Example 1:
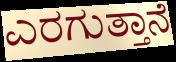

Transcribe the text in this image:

ಎರಗುತ್ತಾನೆ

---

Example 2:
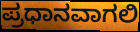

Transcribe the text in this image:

ಪ್ರಧಾನವಾಗಲಿ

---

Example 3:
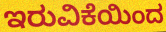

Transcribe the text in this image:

ಇರುವಿಕೆಯಿಂದ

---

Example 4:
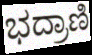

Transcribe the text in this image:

ಭದ್ರಾಣಿ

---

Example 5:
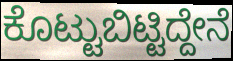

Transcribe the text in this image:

ಕೊಟ್ಟುಬಿಟ್ಟಿದ್ದೇನೆ